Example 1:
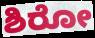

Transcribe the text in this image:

ಶಿರೋ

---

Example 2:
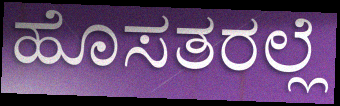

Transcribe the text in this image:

ಹೊಸತರಲ್ಲೆ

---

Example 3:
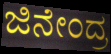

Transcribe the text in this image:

ಜಿನೇಂದ್ರ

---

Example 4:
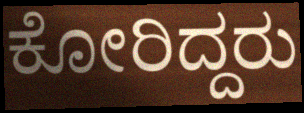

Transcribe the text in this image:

ಕೋರಿದ್ದರು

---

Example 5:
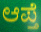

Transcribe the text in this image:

ಆಪ್ತೆ